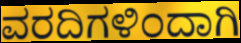
ವರದಿಗಳಿಂದಾಗಿ